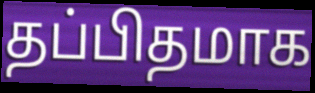
தப்பிதமாக